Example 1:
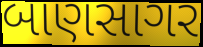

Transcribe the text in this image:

બાણસાગર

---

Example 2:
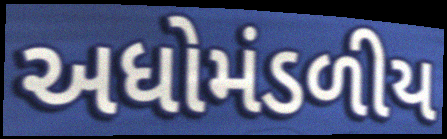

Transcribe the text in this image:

અધોમંડળીય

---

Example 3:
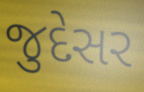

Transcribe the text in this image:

જુદેસર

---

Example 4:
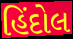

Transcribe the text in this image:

હિંદોલ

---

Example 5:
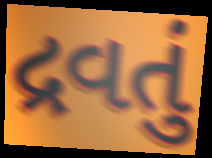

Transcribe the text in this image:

દ્રવતું